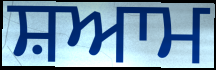
ਸ਼ਆਮ